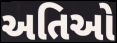
અતિઓ